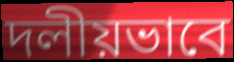
দলীয়ভাবে